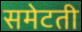
समेटती